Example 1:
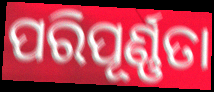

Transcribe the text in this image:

ପରିପୂର୍ଣ୍ଣତା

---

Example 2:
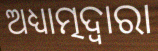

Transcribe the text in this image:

ଅଧ୍ୟାତ୍ମଦ୍ୱାରା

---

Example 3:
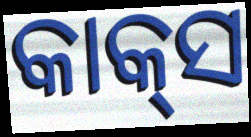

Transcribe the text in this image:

କାକ୍‌ସ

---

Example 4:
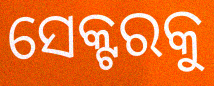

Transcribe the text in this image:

ସେକ୍ଟରକୁ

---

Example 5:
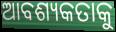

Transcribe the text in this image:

ଆବଶ୍ୟକତାକୁ